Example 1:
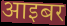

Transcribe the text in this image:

आइबर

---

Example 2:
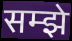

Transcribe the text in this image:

सम्झे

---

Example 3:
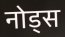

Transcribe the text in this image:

नोड्स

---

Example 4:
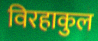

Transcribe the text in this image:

विरहाकुल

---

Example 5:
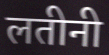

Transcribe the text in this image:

लतीनी